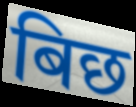
बिछ